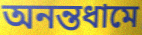
অনন্তধামে